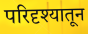
परिदृश्यातून